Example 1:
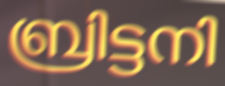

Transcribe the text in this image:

ബ്രിട്ടനി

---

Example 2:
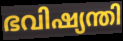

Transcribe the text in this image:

ഭവിഷ്യന്തി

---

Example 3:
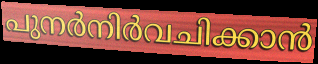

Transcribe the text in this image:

പുനർനിർവചിക്കാൻ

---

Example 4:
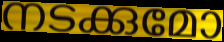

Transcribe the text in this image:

നടക്കുമോ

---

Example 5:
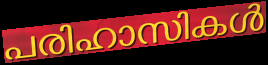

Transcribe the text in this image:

പരിഹാസികൾ